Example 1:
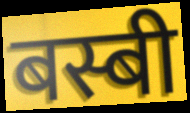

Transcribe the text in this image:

बस्बी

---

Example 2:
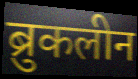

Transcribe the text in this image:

ब्रुकलीन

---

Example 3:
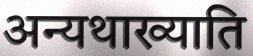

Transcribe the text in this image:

अन्यथाख्याति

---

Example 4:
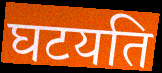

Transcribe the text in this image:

घटयति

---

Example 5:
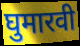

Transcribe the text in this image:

घुमारवी